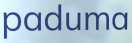
paduma